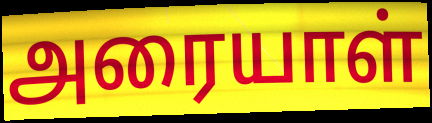
அரையாள்